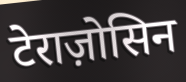
टेराज़ोसिन